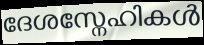
ദേശസ്നേഹികൾ